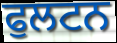
ਫੁਲਟਨ